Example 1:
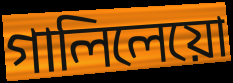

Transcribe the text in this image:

গালিলেয়ো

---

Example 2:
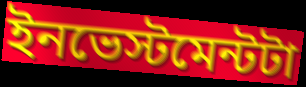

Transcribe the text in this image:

ইনভেস্টমেন্টটা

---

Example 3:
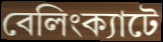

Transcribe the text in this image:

বেলিংক্যাটে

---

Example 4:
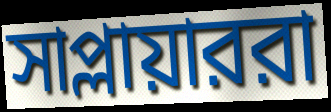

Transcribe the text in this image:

সাপ্লায়াররা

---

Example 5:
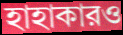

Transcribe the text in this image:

হাহাকারও